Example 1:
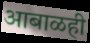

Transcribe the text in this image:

आबाळही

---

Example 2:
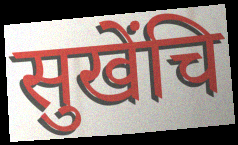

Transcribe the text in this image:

सुखेंचि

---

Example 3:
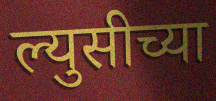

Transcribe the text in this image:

ल्युसीच्या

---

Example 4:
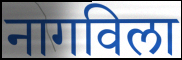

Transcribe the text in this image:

नागविला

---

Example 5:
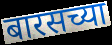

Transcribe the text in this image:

बारसच्या